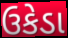
ઉકેડા